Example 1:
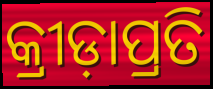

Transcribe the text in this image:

କ୍ରୀଡ଼ାପ୍ରତି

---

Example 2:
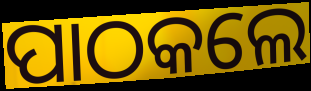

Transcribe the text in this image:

ପାଠକଲେ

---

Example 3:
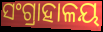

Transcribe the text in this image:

ସଂଗ୍ରାହାଳୟ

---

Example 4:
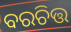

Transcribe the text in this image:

ବରଚିତ୍ତ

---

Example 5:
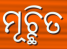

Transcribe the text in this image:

ମୂଚ୍ଛିତ